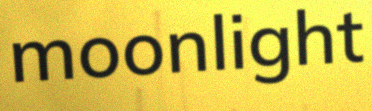
moonlight